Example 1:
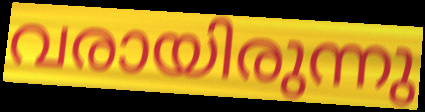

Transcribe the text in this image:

വരായിരുന്നു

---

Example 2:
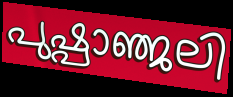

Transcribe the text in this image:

പുഷ്പാഞ്ജലി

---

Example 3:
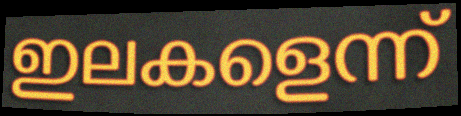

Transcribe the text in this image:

ഇലകളെന്ന്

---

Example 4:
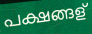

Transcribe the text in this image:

പക്ഷങ്ങള്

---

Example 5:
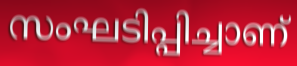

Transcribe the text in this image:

സംഘടിപ്പിച്ചാണ്